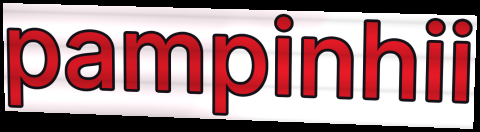
pampinhii